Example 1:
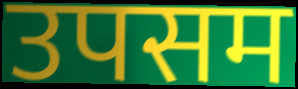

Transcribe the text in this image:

उपसम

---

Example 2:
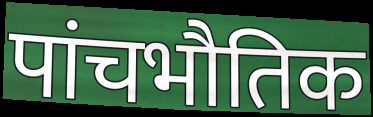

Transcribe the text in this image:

पांचभौतिक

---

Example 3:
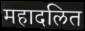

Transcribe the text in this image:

महादलित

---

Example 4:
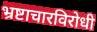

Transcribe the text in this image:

भ्रष्टाचारविरोधी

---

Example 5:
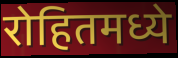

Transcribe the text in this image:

रोहितमध्ये